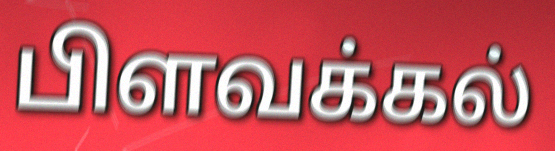
பிளவக்கல்